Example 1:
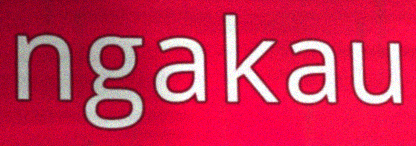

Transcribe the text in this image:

ngakau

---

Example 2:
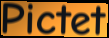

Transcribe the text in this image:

Pictet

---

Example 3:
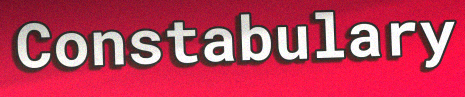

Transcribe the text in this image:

Constabulary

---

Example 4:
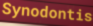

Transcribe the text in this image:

Synodontis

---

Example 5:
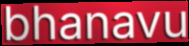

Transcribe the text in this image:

bhanavu